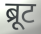
ब्रूट